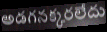
అడగనక్కరలేదు